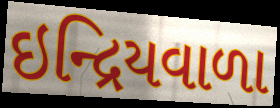
ઇન્દ્રિયવાળા